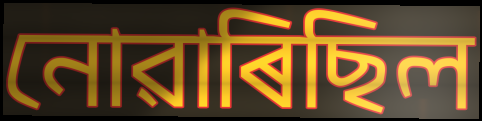
নোৱাৰিছিল